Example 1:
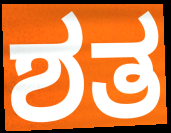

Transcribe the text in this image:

ಶತ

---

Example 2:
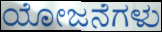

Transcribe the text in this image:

ಯೋಜನೆಗಳು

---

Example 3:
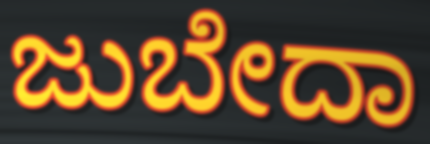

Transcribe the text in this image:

ಜುಬೇದಾ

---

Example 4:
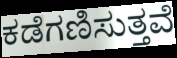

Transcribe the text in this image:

ಕಡೆಗಣಿಸುತ್ತವೆ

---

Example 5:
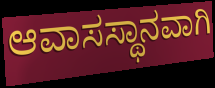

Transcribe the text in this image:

ಆವಾಸಸ್ಥಾನವಾಗಿ